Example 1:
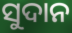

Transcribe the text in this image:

ସୁଦାନ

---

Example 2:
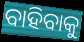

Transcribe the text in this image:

ବାହିବାକୁ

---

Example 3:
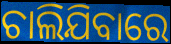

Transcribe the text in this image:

ଚାଲିଯିବାରେ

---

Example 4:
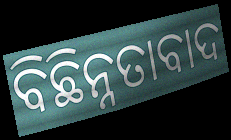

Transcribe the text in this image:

ବିଛିନ୍ନତାବାଦ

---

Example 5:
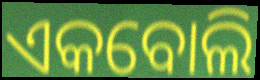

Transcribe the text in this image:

ଏକବୋଲି